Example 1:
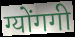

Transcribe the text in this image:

ग्योंगगी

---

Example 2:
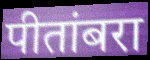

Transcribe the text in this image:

पीतांबरा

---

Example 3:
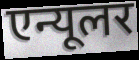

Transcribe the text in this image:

एन्यूलर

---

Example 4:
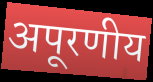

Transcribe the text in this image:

अपूरणीय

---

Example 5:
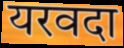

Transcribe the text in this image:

यरवदा